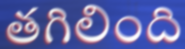
తగిలింది